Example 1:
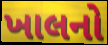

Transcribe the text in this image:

ખાલનો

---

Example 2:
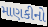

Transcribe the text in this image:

માણકીનો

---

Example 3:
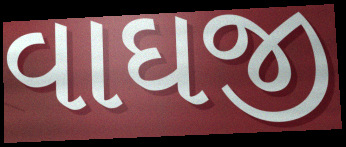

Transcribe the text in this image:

વાઘજી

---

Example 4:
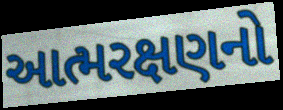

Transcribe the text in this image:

આત્મરક્ષણનો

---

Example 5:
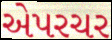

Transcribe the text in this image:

એપરચર